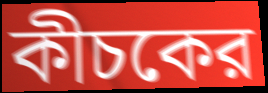
কীচকের